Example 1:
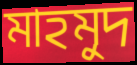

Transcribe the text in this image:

মাহমুদ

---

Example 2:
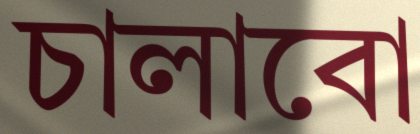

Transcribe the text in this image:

চালাবো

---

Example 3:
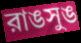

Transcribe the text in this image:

রাঙসুঙ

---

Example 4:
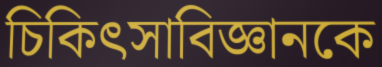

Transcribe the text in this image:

চিকিৎসাবিজ্ঞানকে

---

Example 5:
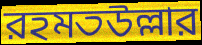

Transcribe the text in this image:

রহমতউল্লার